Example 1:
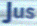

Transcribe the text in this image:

Jus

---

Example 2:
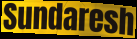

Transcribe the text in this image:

Sundaresh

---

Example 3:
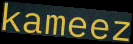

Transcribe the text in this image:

kameez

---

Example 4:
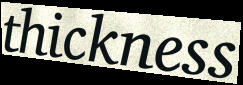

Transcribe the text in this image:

thickness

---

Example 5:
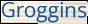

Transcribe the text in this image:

Groggins